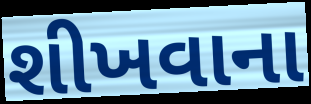
શીખવાના